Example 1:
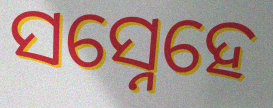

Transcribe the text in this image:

ସସ୍ନେହେ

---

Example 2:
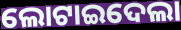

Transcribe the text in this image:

ଲୋଟାଇଦେଲା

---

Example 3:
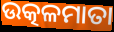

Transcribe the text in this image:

ଉତ୍କଳମାତା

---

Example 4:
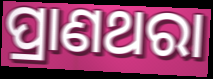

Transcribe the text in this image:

ପ୍ରାଣଥରା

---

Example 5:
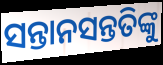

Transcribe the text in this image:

ସନ୍ତାନସନ୍ତତିଙ୍କୁ